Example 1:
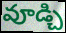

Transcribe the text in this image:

వూడ్చి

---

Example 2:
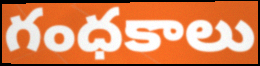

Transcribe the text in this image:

గంధకాలు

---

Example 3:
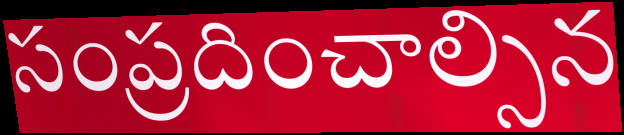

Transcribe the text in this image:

సంప్రదించాల్సిన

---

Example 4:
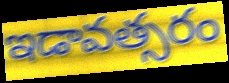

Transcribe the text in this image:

ఇడావత్సరం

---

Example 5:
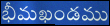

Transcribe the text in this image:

భీమఖండము